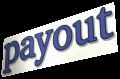
payout